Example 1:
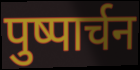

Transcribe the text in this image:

पुष्पार्चन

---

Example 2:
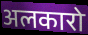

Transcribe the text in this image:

अलकारो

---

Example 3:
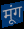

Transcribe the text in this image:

मूंग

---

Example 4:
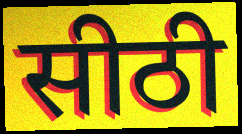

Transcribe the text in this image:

सीठी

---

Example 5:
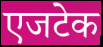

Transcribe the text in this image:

एजटेक